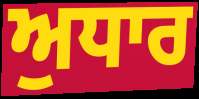
ਅੁਧਾਰ